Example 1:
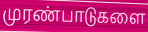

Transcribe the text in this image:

முரண்பாடுகளை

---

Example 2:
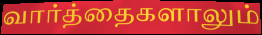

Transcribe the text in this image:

வார்த்தைகளாலும்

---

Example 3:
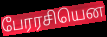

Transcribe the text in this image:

பேரரசியென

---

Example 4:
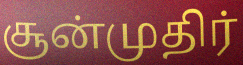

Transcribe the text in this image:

சூன்முதிர்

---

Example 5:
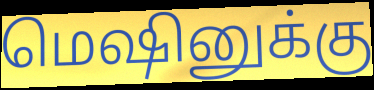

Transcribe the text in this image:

மெஷினுக்கு